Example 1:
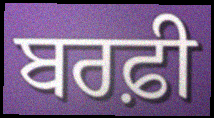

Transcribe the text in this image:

ਬਰਫ਼ੀ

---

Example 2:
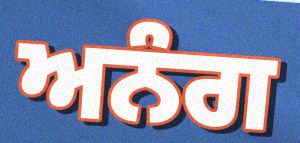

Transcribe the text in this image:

ਅਨੰਗ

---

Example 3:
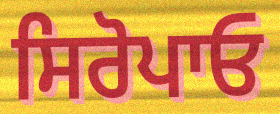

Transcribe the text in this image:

ਸਿਰੋਪਾਓ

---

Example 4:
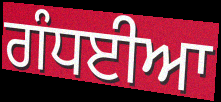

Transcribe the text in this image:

ਗੰਧਈਆ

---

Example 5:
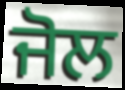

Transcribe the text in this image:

ਜੋਲ